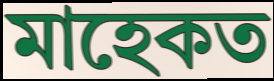
মাহেকত